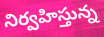
నిర్వహిస్తున్న